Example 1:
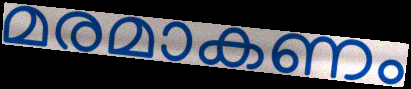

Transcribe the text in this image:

മരമാകണം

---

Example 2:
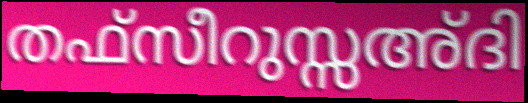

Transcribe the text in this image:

തഫ്സീറുസ്സഅ്ദി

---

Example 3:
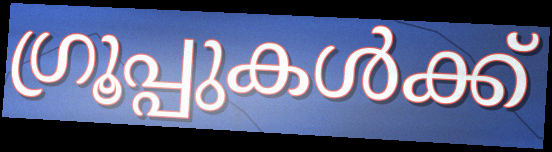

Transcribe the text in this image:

ഗ്രൂപ്പുകൾക്ക്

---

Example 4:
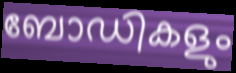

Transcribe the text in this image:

ബോഡികളും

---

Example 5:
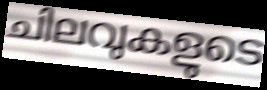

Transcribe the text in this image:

ചിലവുകളുടെ